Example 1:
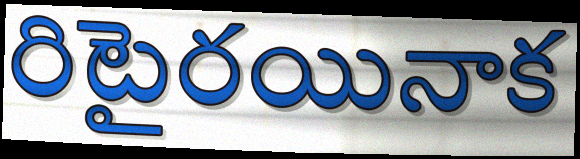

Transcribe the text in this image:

రిటైరయినాక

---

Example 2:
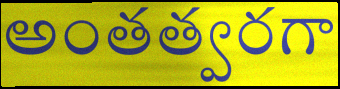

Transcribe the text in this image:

అంతత్వరగా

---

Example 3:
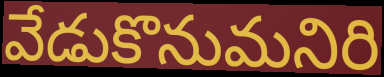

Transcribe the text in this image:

వేడుకొనుమనిరి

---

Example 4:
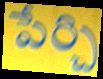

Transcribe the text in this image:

పేర్చి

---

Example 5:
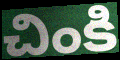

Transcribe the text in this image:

చింకి